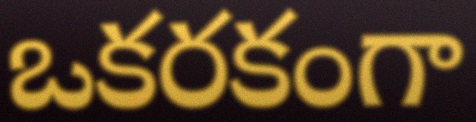
ఒకరకంగా